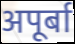
अपूर्बा